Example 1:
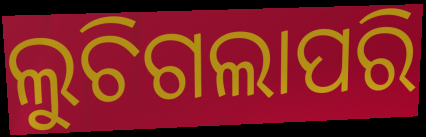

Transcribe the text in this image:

ଲୁଚିଗଲାପରି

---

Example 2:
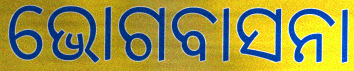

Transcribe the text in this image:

ଭୋଗବାସନା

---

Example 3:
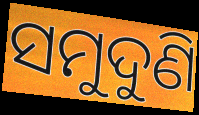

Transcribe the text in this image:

ସମୁଦୁଣି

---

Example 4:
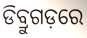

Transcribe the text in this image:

ଡିବ୍ରୁଗଡ଼ରେ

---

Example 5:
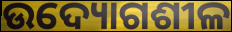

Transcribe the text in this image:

ଉଦ୍ୟୋଗଶୀଳ